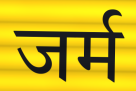
जर्म